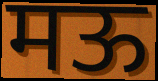
मऊ